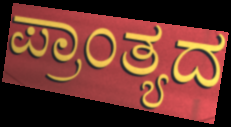
ಪ್ರಾಂತ್ಯದ